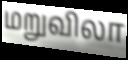
மறுவிலா